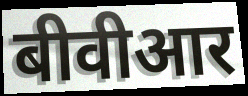
बीवीआर